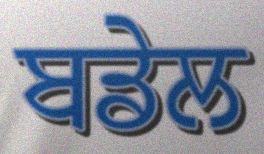
ਬਡੇਲ